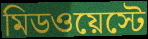
মিডওয়েস্টে